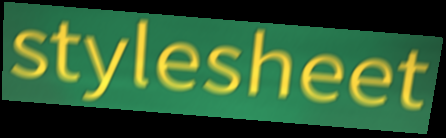
stylesheet